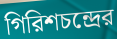
গিরিশচন্দ্রের